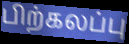
பிற்கலப்பு